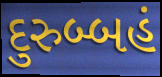
દુરુબ્બહં